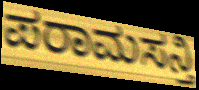
ಪರಾಮಸನ್ತಿ